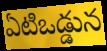
ఏటిఒడ్డున